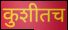
कुशीतच